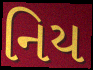
નિય